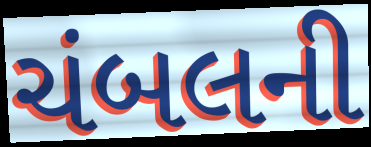
ચંબલની